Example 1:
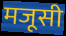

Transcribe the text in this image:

मजूसी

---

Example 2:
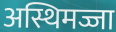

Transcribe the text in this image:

अस्थिमज्जा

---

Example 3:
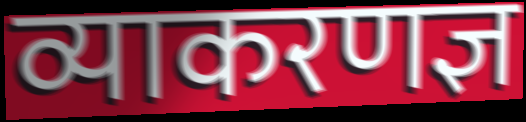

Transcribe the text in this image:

व्याकरणज्ञ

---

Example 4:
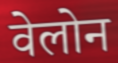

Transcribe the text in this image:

वेलोन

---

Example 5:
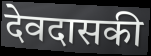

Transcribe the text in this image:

देवदासकी